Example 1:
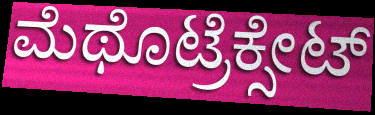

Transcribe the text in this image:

ಮೆಥೊಟ್ರೆಕ್ಸೇಟ್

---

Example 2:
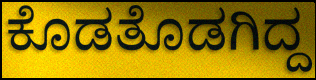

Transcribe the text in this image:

ಕೊಡತೊಡಗಿದ್ದ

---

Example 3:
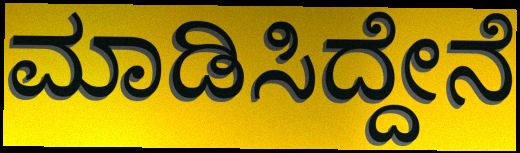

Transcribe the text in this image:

ಮಾಡಿಸಿದ್ದೇನೆ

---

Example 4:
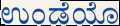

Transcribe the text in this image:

ಉಂಡೆಯೊ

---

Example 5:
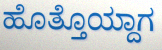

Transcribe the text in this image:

ಹೊತ್ತೊಯ್ದಾಗ